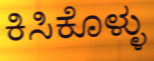
ಕಿಸಿಕೊಳ್ಳು